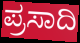
ಪ್ರಸಾದಿ